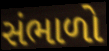
સંભાળો